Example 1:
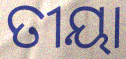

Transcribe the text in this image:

ତୀୟା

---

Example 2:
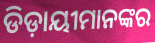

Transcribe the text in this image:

ଡିଡ଼ାୟୀମାନଙ୍କର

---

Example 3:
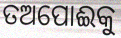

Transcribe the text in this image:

ତଅପୋଈକୁ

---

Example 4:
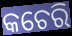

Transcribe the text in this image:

କଚେରି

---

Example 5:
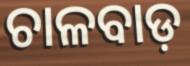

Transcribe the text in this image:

ଚାଳବାଡ଼